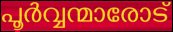
പൂർവ്വന്മാരോട്